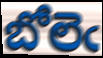
బోలెఁ